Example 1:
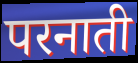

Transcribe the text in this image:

परनाती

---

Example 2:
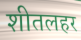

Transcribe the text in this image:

शीतलहर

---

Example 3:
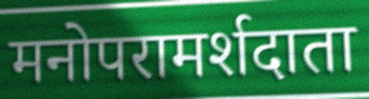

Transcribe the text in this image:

मनोपरामर्शदाता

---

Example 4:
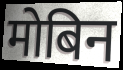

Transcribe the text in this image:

मोबिन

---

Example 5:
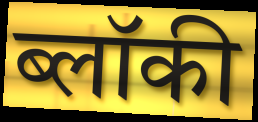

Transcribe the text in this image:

ब्लॉकी